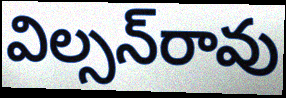
విల్సన్‌రావు